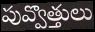
పువ్వొత్తులు